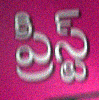
ప్రీస్ట్